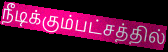
நீடிக்கும்பட்சத்தில்